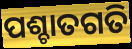
ପଶ୍ଚାତଗତି